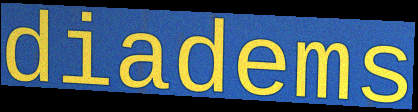
diadems